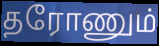
தரோணும்